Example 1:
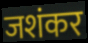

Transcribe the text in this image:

जशंकर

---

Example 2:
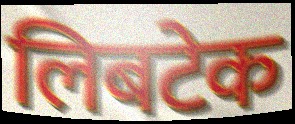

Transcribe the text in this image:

लिबटेक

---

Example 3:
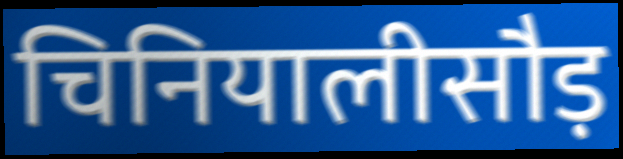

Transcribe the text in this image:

चिनियालीसौड़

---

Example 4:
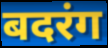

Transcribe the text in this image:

बदरंग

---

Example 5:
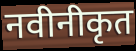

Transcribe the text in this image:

नवीनीकृत